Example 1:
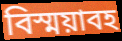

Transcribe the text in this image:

বিস্ময়াবহ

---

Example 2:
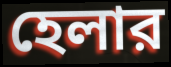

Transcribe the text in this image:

হেলার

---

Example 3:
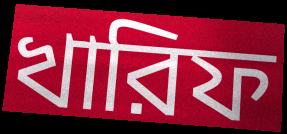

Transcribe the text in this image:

খারিফ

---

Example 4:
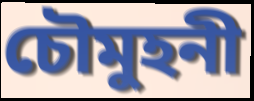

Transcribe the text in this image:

চৌমুহনী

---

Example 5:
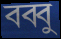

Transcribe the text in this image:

বব্বু